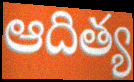
ఆదిత్య